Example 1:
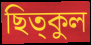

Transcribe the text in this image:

ছিত্কুল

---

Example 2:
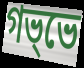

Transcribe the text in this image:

গভ্ভে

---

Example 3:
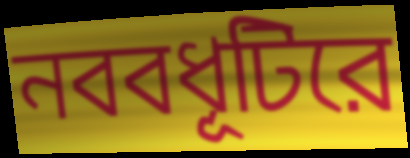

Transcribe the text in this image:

নববধূটিরে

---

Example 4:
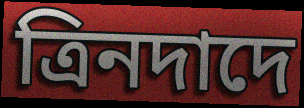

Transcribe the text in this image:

ত্রিনদাদে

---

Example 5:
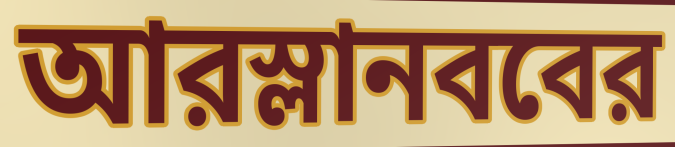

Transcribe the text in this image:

আরস্লানববের